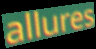
allures